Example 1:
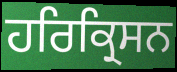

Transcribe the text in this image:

ਹਰਿਕ੍ਰਿਸਨ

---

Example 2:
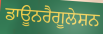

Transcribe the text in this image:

ਡਾਊਨਰੈਗੂਲੇਸ਼ਨ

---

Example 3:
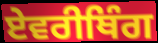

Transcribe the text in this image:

ਏਵਰੀਥਿੰਗ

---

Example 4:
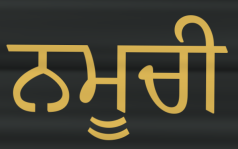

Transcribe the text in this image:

ਨਮੂਚੀ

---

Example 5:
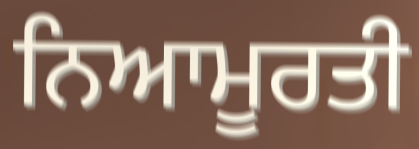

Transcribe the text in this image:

ਨਿਆਮੂਰਤੀ